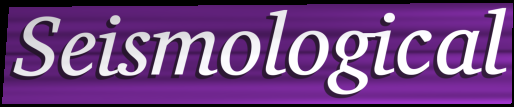
Seismological